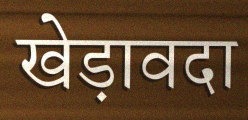
खेड़ावदा